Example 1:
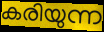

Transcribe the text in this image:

കരിയുന്ന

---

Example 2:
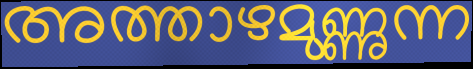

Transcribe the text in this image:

അത്താഴമുണ്ണുന്ന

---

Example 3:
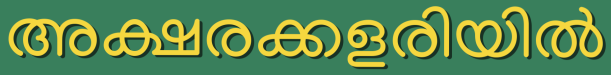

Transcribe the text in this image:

അക്ഷരക്കളരിയിൽ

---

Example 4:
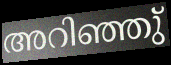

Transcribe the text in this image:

അറിഞ്ഞു്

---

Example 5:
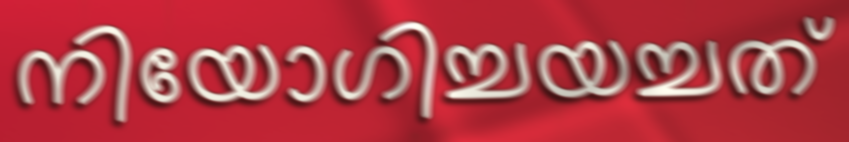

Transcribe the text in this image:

നിയോഗിച്ചയച്ചത്